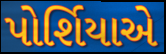
પોર્શિયાએ